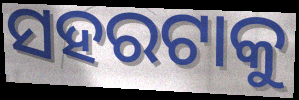
ସହରଟାକୁ